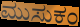
ಮುಸುಕಂ